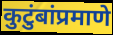
कुटुंबांप्रमाणे